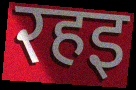
रहइ